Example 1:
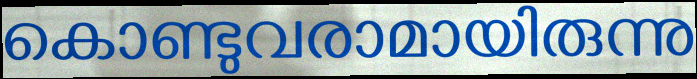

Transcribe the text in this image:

കൊണ്ടുവരാമായിരുന്നു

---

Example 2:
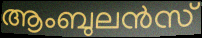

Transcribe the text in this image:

ആംബുലൻസ്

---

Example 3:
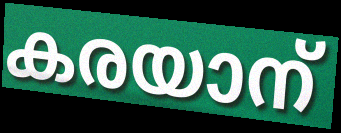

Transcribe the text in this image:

കരയാന്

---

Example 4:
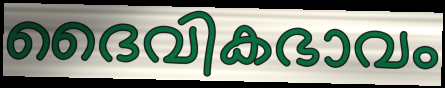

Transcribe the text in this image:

ദൈവികഭാവം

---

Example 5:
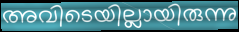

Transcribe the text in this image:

അവിടെയില്ലായിരുന്നു